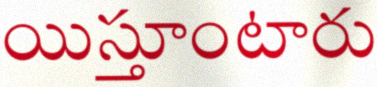
యిస్తూంటారు